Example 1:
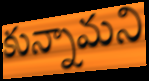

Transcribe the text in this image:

కున్నామని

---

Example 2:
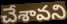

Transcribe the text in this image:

చేశావని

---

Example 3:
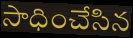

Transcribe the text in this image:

సాధించేసిన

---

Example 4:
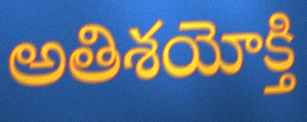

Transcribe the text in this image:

అతిశయోక్తి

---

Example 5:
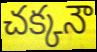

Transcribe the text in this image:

చక్కనౌ